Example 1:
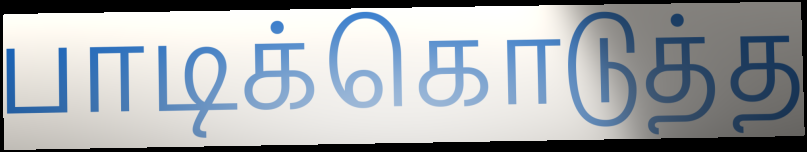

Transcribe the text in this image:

பாடிக்கொடுத்த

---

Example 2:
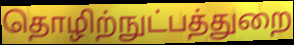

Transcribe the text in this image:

தொழிற்நுட்பத்துறை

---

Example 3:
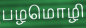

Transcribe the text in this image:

பழமொழி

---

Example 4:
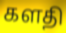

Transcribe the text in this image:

களதி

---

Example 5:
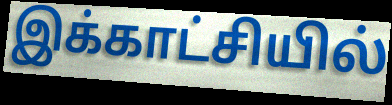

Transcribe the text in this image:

இக்காட்சியில்